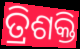
ତ୍ରିଶକ୍ତି